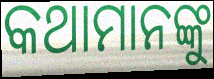
କଥାମାନଙ୍କୁ